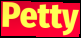
Petty